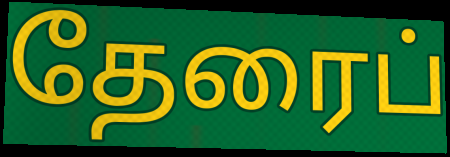
தேரைப்